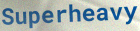
Superheavy